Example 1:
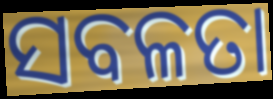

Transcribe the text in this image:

ସବଳତା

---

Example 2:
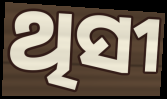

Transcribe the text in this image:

ଥିସୀ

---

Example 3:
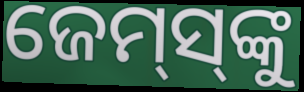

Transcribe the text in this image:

ଜେମ୍‌ସ୍‌ଙ୍କୁ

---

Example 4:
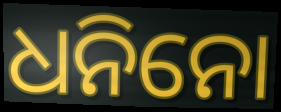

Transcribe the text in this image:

ଧନିନୋ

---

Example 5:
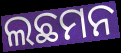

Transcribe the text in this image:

ଲଛମନ